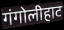
गंगोलीहाट